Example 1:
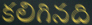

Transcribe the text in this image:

కలిగినది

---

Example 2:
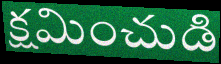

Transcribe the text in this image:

క్షమించుడి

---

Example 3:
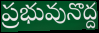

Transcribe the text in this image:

ప్రభువునొద్ద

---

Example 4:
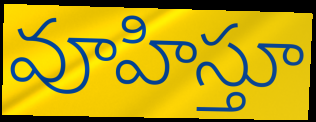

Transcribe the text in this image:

వూహిస్తూ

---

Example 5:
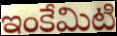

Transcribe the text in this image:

ఇంకేమిటి